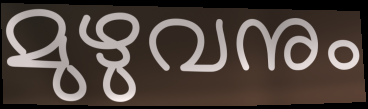
മുഴുവനും